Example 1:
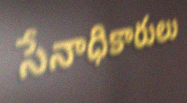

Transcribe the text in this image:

సేనాధికారులు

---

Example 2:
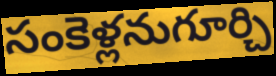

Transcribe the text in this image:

సంకెళ్లనుగూర్చి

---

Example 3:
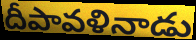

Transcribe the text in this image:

దీపావళినాడు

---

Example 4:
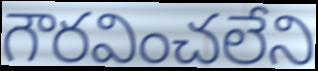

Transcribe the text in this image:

గౌరవించలేని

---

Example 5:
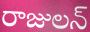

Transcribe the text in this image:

రాజులన్